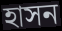
হাসন